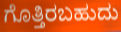
ಗೊತ್ತಿರಬಹುದು